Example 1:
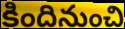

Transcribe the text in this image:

కిందినుంచి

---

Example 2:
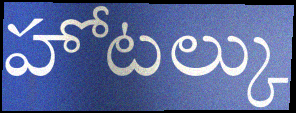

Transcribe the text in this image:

హోటల్కు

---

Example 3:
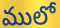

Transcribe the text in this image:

ములో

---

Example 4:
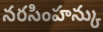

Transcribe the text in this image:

నరసింహన్కు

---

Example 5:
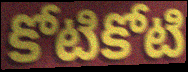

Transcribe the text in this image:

కోటికోటి